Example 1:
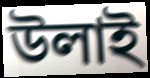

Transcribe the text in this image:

উলাই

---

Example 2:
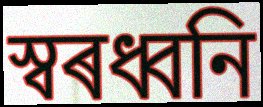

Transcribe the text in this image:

স্বৰধ্বনি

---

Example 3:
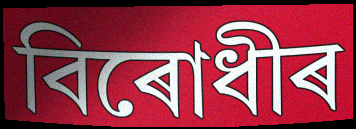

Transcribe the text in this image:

বিৰোধীৰ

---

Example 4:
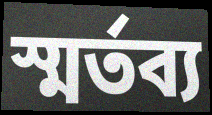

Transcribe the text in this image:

স্মৰ্তব্য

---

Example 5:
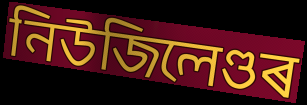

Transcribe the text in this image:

নিউজিলেণ্ডৰ